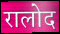
रालोद